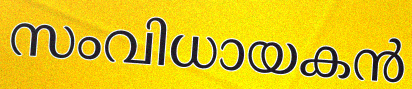
സംവിധായകൻ